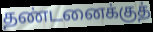
தண்டனைக்குத்